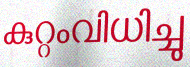
കുറ്റംവിധിച്ചു